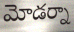
మోడర్నా